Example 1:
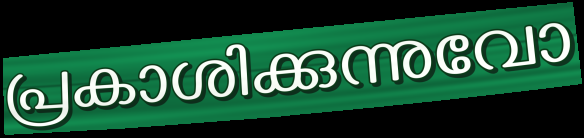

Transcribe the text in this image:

പ്രകാശിക്കുന്നുവോ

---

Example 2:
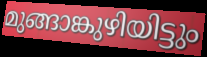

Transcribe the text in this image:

മുങ്ങാങ്കുഴിയിട്ടും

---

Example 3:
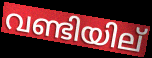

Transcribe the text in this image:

വണ്ടിയില്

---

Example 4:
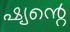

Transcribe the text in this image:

ഷ്യന്റെ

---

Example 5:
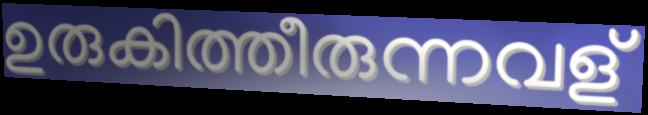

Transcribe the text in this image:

ഉരുകിത്തീരുന്നവള്